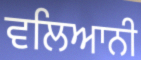
ਵਲਿਆਨੀ